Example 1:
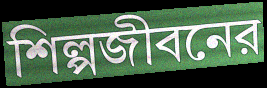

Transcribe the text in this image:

শিল্পজীবনের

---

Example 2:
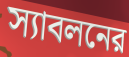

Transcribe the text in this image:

স্যাবলনের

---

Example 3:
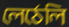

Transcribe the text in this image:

লেঠেলি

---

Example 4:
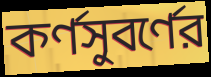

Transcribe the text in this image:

কর্ণসুবর্ণের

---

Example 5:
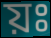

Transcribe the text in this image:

য়ঃ